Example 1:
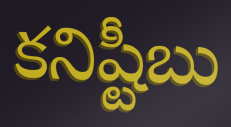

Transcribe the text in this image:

కనిష్టీబు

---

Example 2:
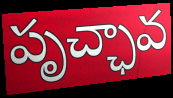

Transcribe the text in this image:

పృచ్ఛావ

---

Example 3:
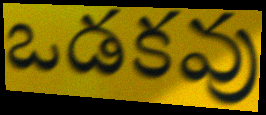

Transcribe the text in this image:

ఒడకవు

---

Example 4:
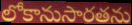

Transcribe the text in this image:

లోకానుసారతను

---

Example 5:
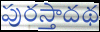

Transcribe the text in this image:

పురస్తాదథ